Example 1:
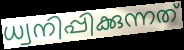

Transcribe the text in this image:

ധ്വനിപ്പിക്കുന്നത്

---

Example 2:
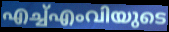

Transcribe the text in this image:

എച്ച്എംവിയുടെ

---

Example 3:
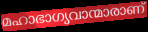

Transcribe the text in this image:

മഹാഭാഗ്യവാന്മാരാണ്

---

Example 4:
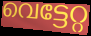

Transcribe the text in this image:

വെട്ടേറ്റ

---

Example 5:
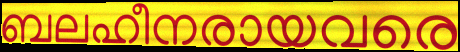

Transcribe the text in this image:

ബലഹീനരായവരെ